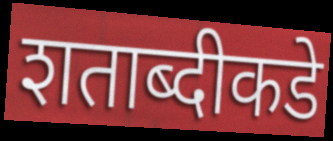
शताब्दीकडे